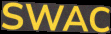
SWAC